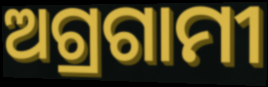
ଅଗ୍ରଗାମୀ